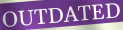
OUTDATED